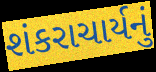
શંકરાચાર્યનું